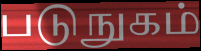
படுநுகம்